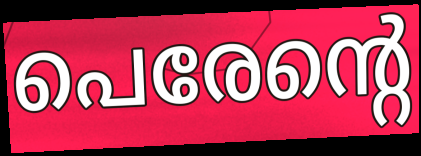
പെരേന്റെ